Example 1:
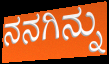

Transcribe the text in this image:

ನನಗಿನ್ನು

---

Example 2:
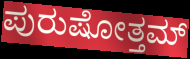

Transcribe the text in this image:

ಪುರುಷೋತ್ತಮ್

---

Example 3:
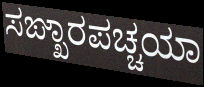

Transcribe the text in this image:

ಸಙ್ಖಾರಪಚ್ಚಯಾ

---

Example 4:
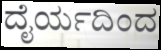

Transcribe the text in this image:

ದೈರ್ಯದಿಂದ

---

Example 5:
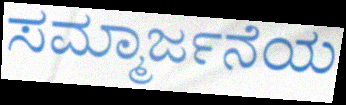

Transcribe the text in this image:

ಸಮ್ಮಾರ್ಜನೆಯ